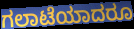
ಗಲಾಟೆಯಾದರೂ